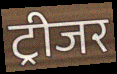
ट्रीजर